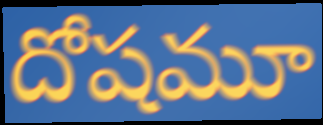
దోషమూ